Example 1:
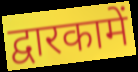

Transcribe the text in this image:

द्वारकामें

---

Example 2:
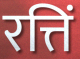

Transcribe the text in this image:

रत्तिं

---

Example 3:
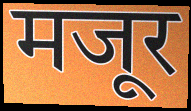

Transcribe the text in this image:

मजूर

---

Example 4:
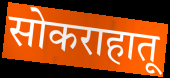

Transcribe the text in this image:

सोकराहातू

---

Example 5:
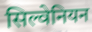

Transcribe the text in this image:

सिल्वेनियन